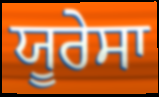
ਯੂਰੇਸਾ